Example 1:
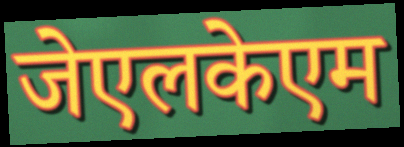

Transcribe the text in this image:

जेएलकेएम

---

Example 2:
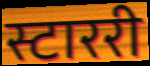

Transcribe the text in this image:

स्टाररी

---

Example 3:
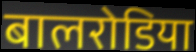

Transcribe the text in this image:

बालरोडिया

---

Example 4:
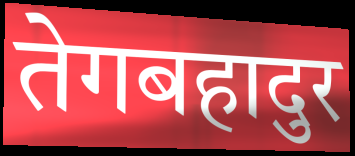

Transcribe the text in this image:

तेगबहादुर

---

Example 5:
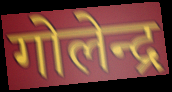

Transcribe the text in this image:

गोलेन्द्र